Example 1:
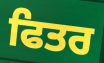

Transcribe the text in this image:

ਫਿਤਰ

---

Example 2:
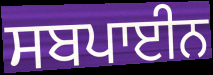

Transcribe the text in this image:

ਸਬਪਾਈਨ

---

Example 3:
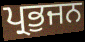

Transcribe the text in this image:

ਪ੍ਰਭੁਜਨ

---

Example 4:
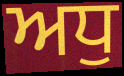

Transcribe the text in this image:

ਅਧੁ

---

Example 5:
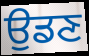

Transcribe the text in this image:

ਉਡਣ